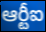
ఆర్టీఐ